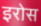
इरोस